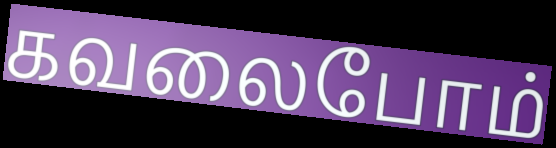
கவலைபோம்